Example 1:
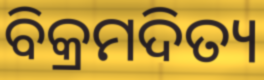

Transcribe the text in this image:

ବିକ୍ରମଦିତ୍ୟ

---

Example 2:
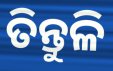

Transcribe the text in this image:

ତିନ୍ତୁଳି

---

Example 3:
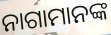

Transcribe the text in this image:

ନାଗାମାନଙ୍କ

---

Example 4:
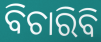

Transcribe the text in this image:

ବିଚାରିବି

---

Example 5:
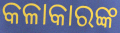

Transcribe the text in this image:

କଳାକାରଙ୍କ